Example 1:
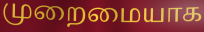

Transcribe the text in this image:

முறைமையாக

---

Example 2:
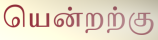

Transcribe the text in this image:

யென்றற்கு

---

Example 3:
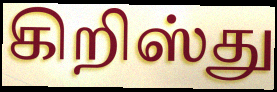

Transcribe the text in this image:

கிறிஸ்து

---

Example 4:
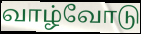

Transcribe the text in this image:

வாழ்வோடு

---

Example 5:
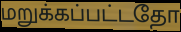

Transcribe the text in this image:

மறுக்கப்பட்டதோ